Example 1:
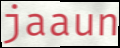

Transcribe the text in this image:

jaaun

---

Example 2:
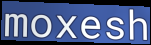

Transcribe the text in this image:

moxesh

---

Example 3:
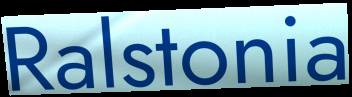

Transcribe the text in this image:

Ralstonia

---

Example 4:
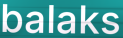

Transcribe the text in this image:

balaks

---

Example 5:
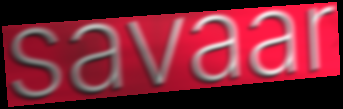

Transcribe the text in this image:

savaar